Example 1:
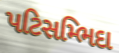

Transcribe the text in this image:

પટિસમ્ભિદા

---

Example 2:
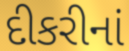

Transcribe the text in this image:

દીકરીનાં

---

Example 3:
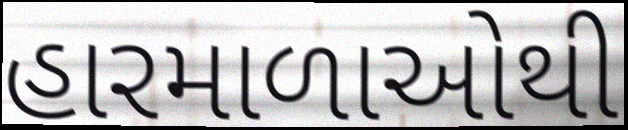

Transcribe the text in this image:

હારમાળાઓથી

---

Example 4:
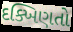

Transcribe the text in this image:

દક્ખિણતો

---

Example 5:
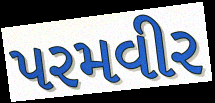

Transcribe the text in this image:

પરમવીર